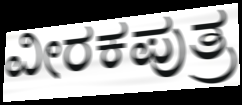
ವೀರಕಪುತ್ರ